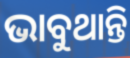
ଭାବୁଥାନ୍ତି